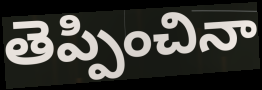
తెప్పించినా